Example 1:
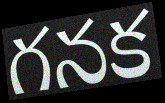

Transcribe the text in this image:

గనక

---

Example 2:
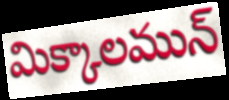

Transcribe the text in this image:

మిక్కాలమున్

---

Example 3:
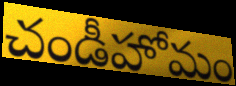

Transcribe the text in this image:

చండీహోమం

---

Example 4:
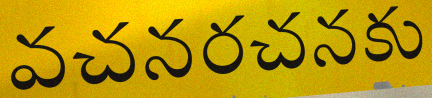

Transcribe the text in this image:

వచనరచనకు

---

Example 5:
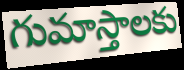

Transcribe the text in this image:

గుమాస్తాలకు